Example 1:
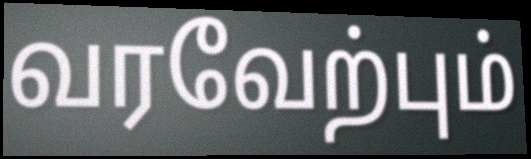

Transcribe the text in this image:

வரவேற்பும்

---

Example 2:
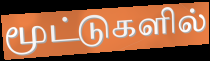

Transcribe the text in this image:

மூட்டுகளில்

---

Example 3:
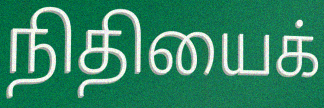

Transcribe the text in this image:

நிதியைக்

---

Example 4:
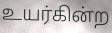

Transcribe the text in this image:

உயர்கின்ற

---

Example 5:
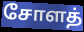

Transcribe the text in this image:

சோளத்